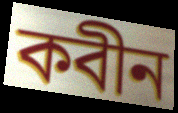
কবীন